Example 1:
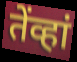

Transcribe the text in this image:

तेंव्हां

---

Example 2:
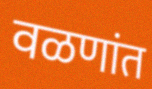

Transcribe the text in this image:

वळणांत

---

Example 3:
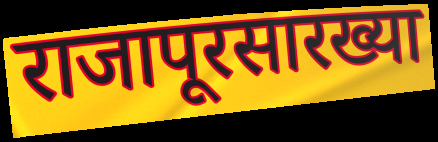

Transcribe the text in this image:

राजापूरसारख्या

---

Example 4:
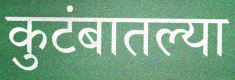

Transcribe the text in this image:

कुटंबातल्या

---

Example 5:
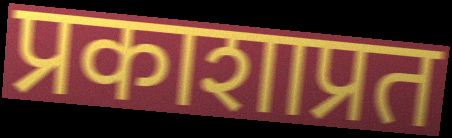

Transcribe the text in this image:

प्रकाशाप्रत